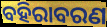
ବହିରାବରଣ